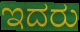
ಇದರು